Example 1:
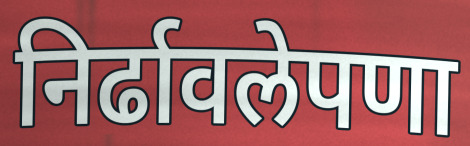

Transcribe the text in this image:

निर्ढावलेपणा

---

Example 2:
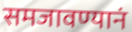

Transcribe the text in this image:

समजावण्यानं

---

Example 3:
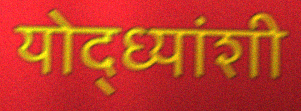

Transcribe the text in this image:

योद्ध्यांशी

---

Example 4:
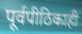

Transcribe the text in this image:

पूर्वपीठिकाही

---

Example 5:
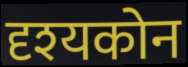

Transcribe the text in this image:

दृश्‍यकोन